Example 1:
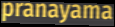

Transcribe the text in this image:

pranayama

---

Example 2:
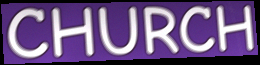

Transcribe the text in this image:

CHURCH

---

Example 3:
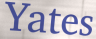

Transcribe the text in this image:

Yates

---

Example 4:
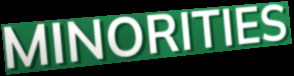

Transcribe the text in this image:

MINORITIES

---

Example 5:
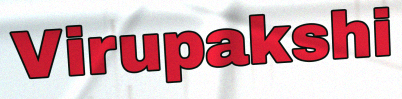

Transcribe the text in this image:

Virupakshi